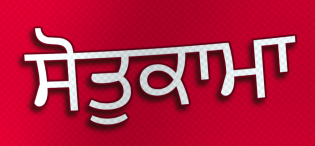
ਸੋਤੁਕਾਮਾ